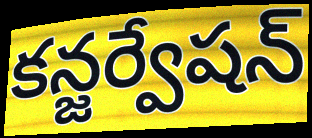
కన్జర్వేషన్